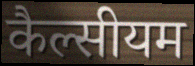
कैल्सीयम